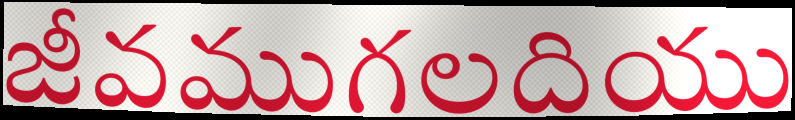
జీవముగలదియు